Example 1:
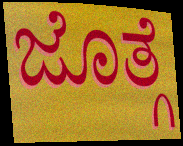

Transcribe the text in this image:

ಜೊತ್ಗೆ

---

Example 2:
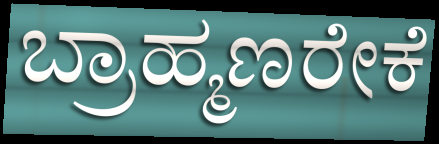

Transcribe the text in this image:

ಬ್ರಾಹ್ಮಣರೇಕೆ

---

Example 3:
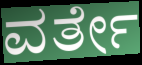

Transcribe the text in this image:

ವರ್ತೇ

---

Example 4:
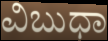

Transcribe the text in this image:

ವಿಬುಧಾ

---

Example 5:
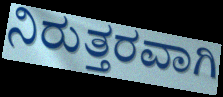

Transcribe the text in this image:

ನಿರುತ್ತರವಾಗಿ